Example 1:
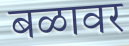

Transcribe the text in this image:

बळावर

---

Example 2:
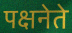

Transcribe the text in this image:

पक्षनेते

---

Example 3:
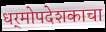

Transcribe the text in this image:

धर्मोपदेशकाचा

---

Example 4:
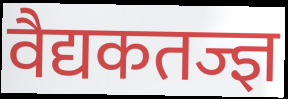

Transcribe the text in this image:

वैद्यकतज्ज्ञ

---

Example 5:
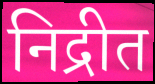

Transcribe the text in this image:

निद्रीत